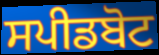
ਸਪੀਡਬੋਟ